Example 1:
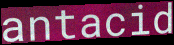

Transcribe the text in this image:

antacid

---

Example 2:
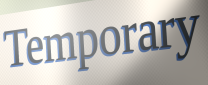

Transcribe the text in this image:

Temporary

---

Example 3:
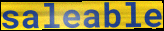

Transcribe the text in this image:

saleable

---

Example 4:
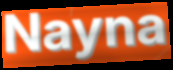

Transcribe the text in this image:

Nayna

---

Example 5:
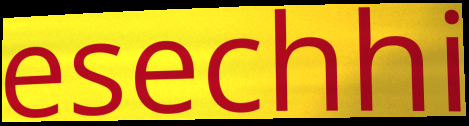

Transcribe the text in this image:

esechhi